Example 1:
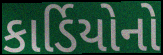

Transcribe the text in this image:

કાર્ડિયોનો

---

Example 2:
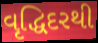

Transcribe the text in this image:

વૃદ્ધિદરથી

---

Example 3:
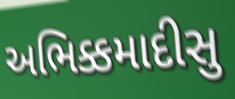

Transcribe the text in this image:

અભિક્કમાદીસુ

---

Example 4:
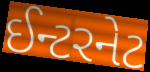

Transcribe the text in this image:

ઈન્ટરનેટ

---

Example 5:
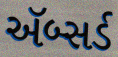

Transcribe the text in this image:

ઍબ્સર્ડ